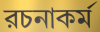
রচনাকর্ম